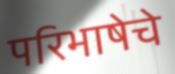
परिभाषेचे